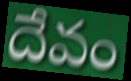
దేవం